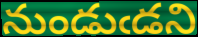
నుండుఁడని